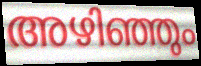
അഴിഞ്ഞും